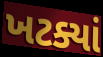
ખટક્યાં